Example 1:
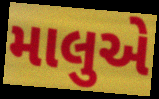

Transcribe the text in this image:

માલુએ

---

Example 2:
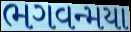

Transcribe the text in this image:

ભગવન્મયા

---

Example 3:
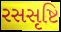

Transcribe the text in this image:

રસસૃષ્ટિ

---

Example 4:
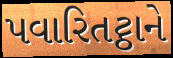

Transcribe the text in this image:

પવારિતટ્ઠાને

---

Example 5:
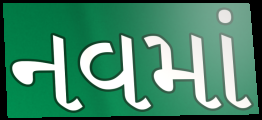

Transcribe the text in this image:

નવમાં